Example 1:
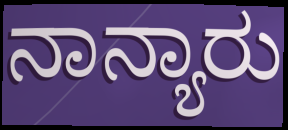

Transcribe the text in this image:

ನಾನ್ಯಾರು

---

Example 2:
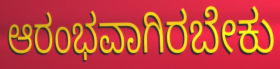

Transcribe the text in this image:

ಆರಂಭವಾಗಿರಬೇಕು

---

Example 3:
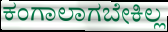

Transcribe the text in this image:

ಕಂಗಾಲಾಗಬೇಕಿಲ್ಲ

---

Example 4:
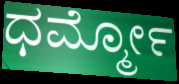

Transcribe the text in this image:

ಧರ್ಮ್ಮೋ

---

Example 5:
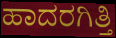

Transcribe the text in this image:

ಹಾದರಗಿತ್ತಿ